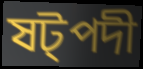
ষট্‌পদী